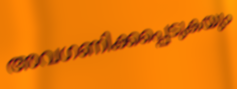
അവഗണിക്കപ്പെടുകയും